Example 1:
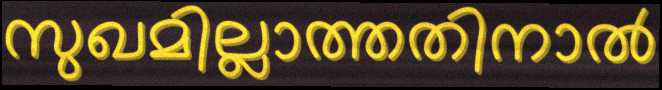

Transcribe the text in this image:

സുഖമില്ലാത്തതിനാൽ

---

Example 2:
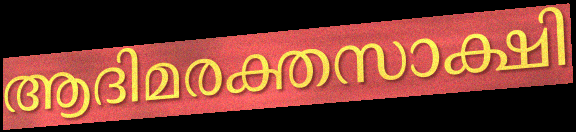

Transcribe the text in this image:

ആദിമരക്തസാക്ഷി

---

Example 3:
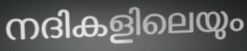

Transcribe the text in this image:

നദികളിലെയും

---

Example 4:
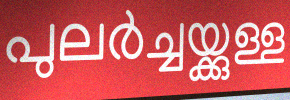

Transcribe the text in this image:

പുലർച്ചയ്ക്കുള്ള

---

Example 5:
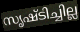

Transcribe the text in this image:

സൃഷ്ടിച്ചില്ല